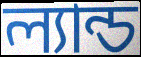
ল্যান্ড